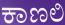
ಕಾಣಲಿ